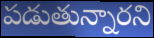
పడుతున్నారని